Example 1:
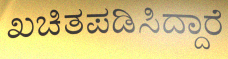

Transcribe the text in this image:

ಖಚಿತಪಡಿಸಿದ್ದಾರೆ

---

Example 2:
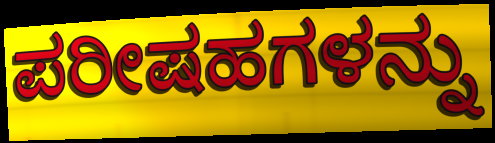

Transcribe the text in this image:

ಪರೀಷಹಗಳನ್ನು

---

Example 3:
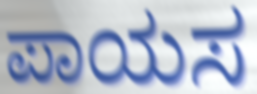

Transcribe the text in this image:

ಪಾಯಸ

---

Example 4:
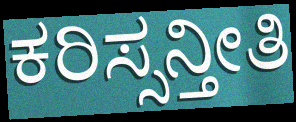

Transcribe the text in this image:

ಕರಿಸ್ಸನ್ತೀತಿ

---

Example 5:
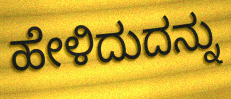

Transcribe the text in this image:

ಹೇಳಿದುದನ್ನು